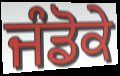
ਜੰਡੋਕੇ